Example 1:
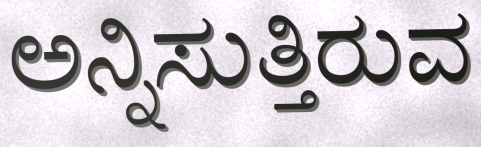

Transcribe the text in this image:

ಅನ್ನಿಸುತ್ತಿರುವ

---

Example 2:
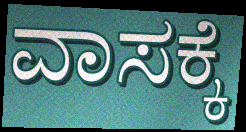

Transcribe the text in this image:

ವಾಸಕ್ಕೆ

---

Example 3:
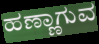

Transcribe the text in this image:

ಹಣ್ಣಾಗುವ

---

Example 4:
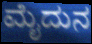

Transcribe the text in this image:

ಮೈದುನ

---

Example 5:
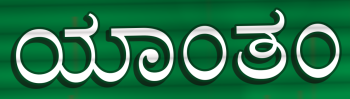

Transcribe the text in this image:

ಯಾಂತಂ